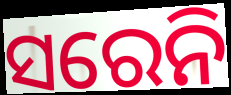
ସରେନି